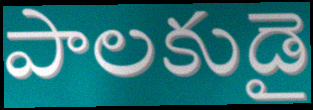
పాలకుడై